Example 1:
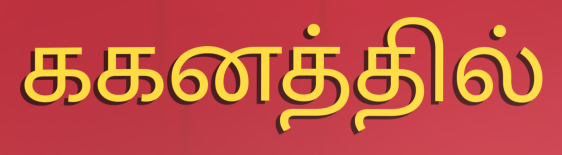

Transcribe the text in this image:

ககனத்தில்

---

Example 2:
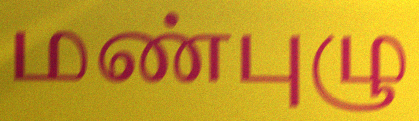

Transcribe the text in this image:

மண்புழு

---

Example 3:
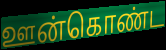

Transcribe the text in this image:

ஊன்கொண்ட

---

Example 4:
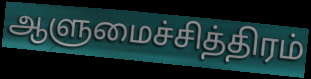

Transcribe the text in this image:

ஆளுமைச்சித்திரம்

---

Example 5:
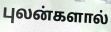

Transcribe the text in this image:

புலன்களால்